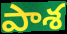
పాశ